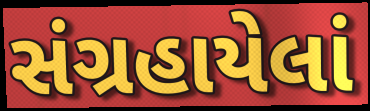
સંગ્રહાયેલાં